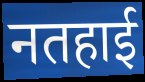
नतहाई